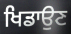
ਖਿਡਾਉਣ